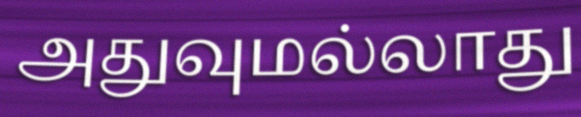
அதுவுமல்லாது